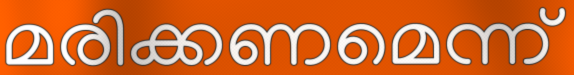
മരിക്കണമെന്ന്